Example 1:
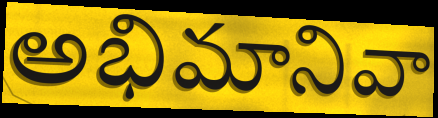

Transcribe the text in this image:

అభిమానివా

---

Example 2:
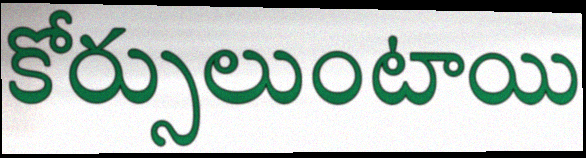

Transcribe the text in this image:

కోర్సులుంటాయి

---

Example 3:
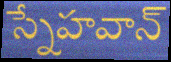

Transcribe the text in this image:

స్నేహవాన్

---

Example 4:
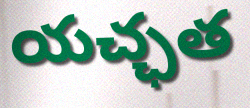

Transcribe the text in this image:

యచ్ఛత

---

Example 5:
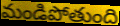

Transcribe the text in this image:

మండిపోతుంది